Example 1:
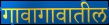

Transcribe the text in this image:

गावागावातील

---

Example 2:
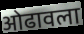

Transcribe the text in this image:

ओढावला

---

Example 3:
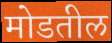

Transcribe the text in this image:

मोडतील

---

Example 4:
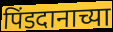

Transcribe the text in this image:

पिंडदानाच्या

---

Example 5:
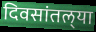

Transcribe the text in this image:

दिवसांतल्या